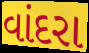
વાંદરા